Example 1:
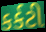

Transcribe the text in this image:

કર્કટી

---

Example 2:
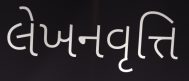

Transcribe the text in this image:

લેખનવૃત્તિ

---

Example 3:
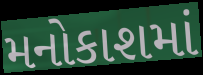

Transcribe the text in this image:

મનોકાશમાં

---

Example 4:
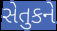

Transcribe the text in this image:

સેતુકને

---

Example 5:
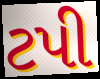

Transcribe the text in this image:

ટપી